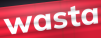
wasta